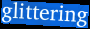
glittering